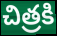
చిత్రకి